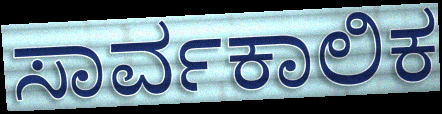
ಸಾರ್ವಕಾಲಿಕ